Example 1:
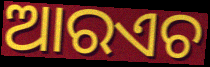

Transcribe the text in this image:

ଆରଏଚ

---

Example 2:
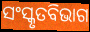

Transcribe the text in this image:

ସଂସ୍କୃତବିଭାଗ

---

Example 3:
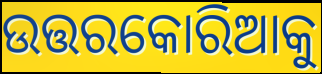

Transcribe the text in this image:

ଉତ୍ତରକୋରିଆକୁ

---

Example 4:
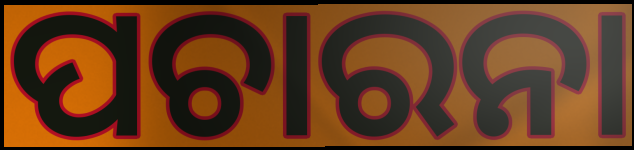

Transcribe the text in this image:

ପଚାରନା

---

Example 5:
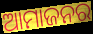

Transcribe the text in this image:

ଆମାଜନର